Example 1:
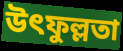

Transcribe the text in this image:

উৎফুল্লতা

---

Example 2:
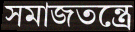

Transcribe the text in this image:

সমাজতন্ত্রে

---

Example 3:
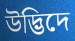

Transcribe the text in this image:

উদ্ভিদে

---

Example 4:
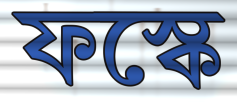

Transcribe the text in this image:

ফস্কে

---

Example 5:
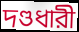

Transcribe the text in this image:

দণ্ডধারী